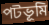
পটভূমি